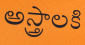
అస్త్రాలకి